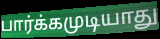
பார்க்கமுடியாது